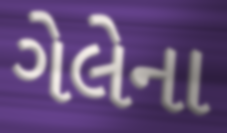
ગેલેના